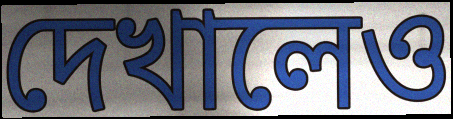
দেখালেও